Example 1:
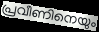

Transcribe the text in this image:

പ്രവീണിനെയും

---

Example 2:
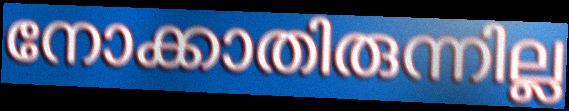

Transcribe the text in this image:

നോക്കാതിരുന്നില്ല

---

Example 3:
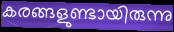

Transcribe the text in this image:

കരങ്ങളുണ്ടായിരുന്നു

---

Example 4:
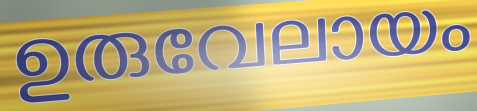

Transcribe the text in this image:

ഉരുവേലായം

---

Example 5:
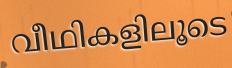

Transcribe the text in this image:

വീഥികളിലൂടെ